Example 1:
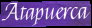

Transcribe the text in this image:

Atapuerca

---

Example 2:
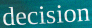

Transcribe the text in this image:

decision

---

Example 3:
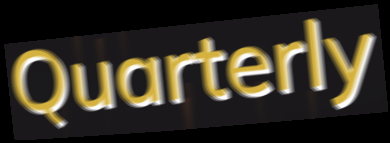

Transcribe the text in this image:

Quarterly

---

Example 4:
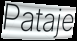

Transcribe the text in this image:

Pataje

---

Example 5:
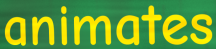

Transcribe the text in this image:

animates